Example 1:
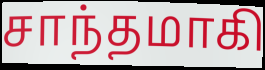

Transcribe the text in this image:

சாந்தமாகி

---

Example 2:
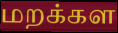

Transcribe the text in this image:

மறக்கள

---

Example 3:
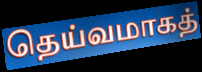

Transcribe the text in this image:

தெய்வமாகத்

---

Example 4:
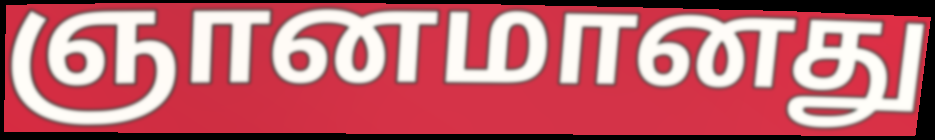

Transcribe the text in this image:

ஞானமானது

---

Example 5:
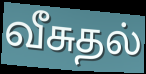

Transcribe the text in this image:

வீசுதல்